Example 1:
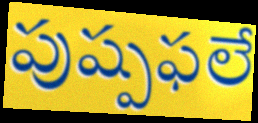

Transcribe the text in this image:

పుష్పఫలే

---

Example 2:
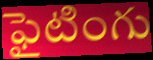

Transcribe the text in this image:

ఫైటింగు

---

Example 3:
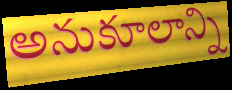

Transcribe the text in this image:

అనుకూలాన్ని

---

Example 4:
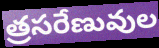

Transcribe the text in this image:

త్రసరేణువుల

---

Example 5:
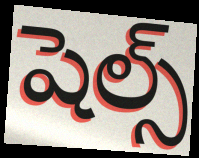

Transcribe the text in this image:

షెల్స్